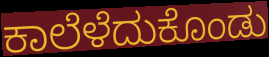
ಕಾಲೆಳೆದುಕೊಂಡು